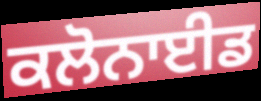
ਕਲੋਨਾਈਡ